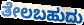
ತೇಲಬಹುದು